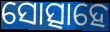
ସୋତ୍ସାହେ